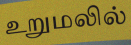
உறுமலில்